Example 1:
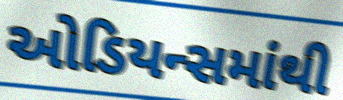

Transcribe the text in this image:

ઓડિયન્સમાંથી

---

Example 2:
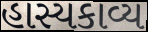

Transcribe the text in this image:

હાસ્યકાવ્ય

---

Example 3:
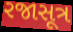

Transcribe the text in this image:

રજાસૂત્ર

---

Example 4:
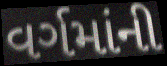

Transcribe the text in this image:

વર્ગમાંની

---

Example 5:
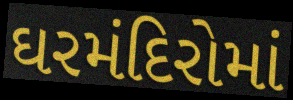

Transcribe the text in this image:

ઘરમંદિરોમાં